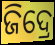
ଜିଦ୍ରେ